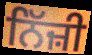
ਨਿੱਜ਼ੀ